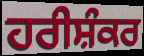
ਹਰੀਸ਼ੰਕਰ